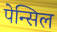
पेन्सिल